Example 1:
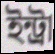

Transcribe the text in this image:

ইন্ট্রা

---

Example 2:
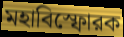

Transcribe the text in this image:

মহাবিস্ফোরক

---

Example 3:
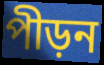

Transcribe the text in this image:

পীড়ন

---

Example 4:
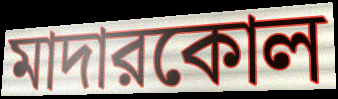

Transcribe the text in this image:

মাদারকোল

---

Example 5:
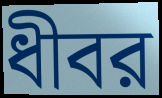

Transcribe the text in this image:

ধীবর